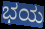
ಭಯ